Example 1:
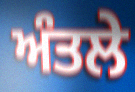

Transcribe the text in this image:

ਅੰਤਲੇ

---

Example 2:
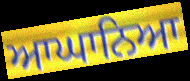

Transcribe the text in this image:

ਆਘਾਨਿਆ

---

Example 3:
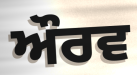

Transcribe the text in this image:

ਔਰਵ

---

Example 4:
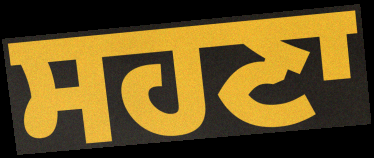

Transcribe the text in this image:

ਸਹਣਾ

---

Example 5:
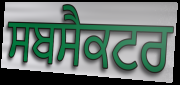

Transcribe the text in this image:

ਸਬਸੈਕਟਰ